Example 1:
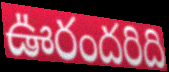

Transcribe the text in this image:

ఊరందరిది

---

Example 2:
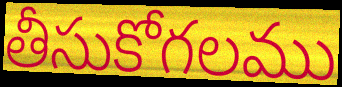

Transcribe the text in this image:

తీసుకోగలము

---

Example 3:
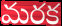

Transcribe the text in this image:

మరక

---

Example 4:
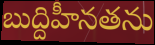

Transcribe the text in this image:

బుద్దిహీనతను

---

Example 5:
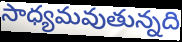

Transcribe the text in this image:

సాధ్యమవుతున్నది